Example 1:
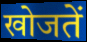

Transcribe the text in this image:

खोजतें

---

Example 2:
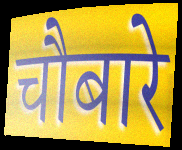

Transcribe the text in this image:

चौबारे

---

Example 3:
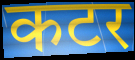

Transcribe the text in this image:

कटर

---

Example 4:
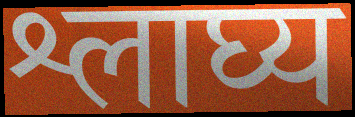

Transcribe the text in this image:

श्लाघ्य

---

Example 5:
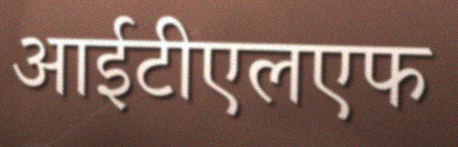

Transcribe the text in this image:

आईटीएलएफ